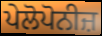
ਪੇਲੋਪੋਨੀਜ਼